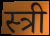
स्त्री